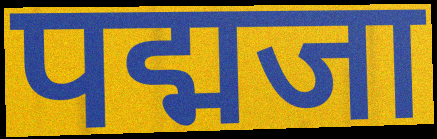
पद्मजा